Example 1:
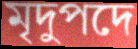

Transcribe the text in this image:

মৃদুপদে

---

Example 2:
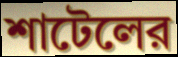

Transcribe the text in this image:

শাটেলের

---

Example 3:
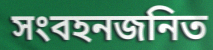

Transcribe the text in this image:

সংবহনজনিত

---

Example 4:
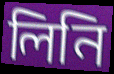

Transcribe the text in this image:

লিনি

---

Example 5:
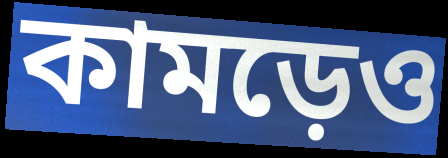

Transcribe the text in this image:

কামড়েও